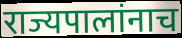
राज्यपालांनाच